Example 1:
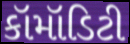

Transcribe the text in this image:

કૉમૉડિટી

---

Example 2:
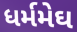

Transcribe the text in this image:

ધર્મમેઘ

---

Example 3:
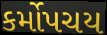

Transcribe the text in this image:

કર્મોપચય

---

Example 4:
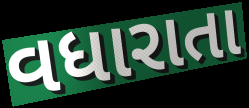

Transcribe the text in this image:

વધારાતા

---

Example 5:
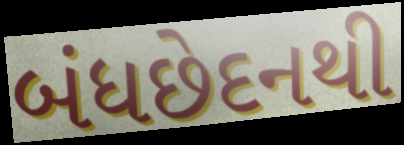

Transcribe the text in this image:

બંધછેદનથી